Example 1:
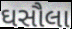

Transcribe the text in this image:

ઘસૌલા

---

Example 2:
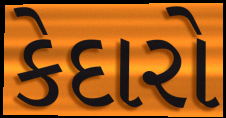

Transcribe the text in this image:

કેદારો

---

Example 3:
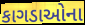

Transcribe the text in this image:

કાગડાઓના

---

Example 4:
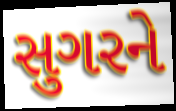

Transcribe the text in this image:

સુગરને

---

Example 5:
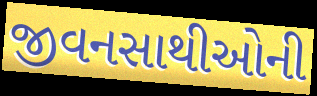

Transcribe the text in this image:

જીવનસાથીઓની